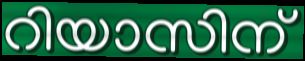
റിയാസിന്